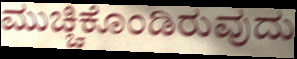
ಮುಚ್ಚಿಕೊಂಡಿರುವುದು